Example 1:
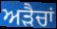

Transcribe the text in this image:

ਅੜੈਚਾਂ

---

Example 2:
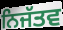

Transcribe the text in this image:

ਨਿਜੱਤਵ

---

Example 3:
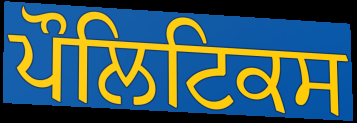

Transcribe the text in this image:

ਪੌਲਿਟਿਕਸ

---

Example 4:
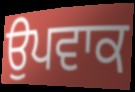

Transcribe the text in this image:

ਉਪਵਾਕ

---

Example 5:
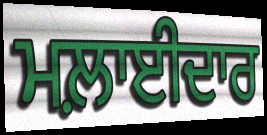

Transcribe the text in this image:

ਮਲ਼ਾਈਦਾਰ